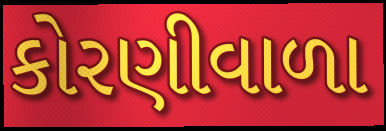
કોરણીવાળા